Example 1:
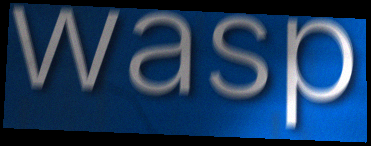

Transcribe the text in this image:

wasp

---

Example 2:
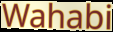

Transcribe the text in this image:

Wahabi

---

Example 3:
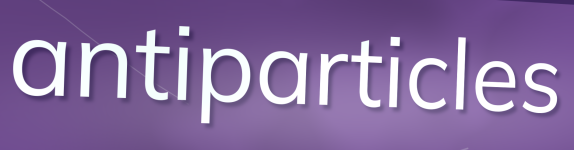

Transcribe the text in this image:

antiparticles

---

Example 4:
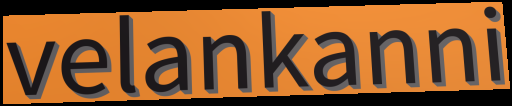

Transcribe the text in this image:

velankanni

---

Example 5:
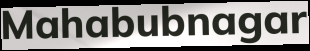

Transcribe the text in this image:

Mahabubnagar